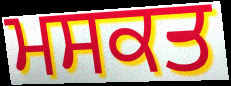
ਮਸਕਤ